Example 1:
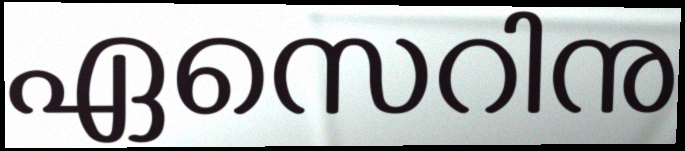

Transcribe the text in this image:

ഏസെറിനു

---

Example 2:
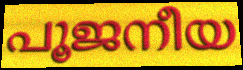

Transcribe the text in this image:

പൂജനീയ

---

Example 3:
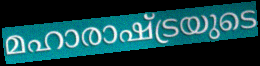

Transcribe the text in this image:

മഹാരാഷ്ട്രയുടെ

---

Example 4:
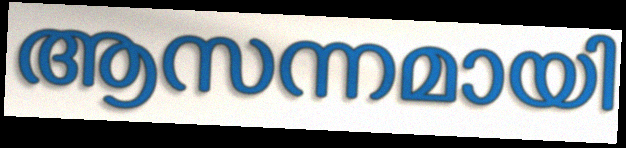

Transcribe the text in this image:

ആസന്നമായി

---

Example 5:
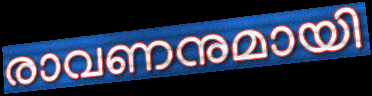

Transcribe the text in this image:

രാവണനുമായി